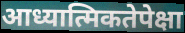
आध्यात्मिकतेपेक्षा